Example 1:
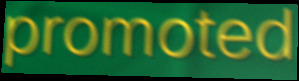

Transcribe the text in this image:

promoted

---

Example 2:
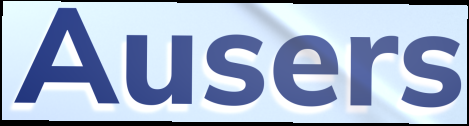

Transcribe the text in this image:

Ausers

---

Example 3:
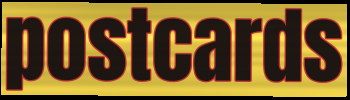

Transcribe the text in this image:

postcards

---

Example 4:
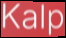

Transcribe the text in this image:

Kalp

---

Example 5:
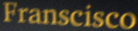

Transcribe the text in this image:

Franscisco